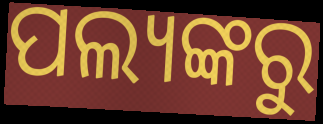
ପଲ୍ୟଙ୍କରୁ